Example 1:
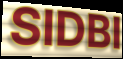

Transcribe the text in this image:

SIDBI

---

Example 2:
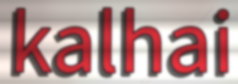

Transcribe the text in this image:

kalhai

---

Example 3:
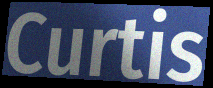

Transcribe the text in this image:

Curtis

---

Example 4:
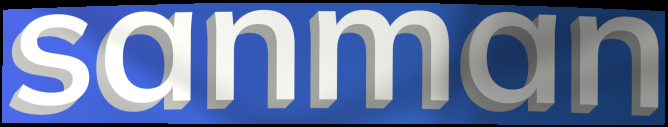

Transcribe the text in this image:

sanman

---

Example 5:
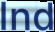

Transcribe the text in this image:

Ind